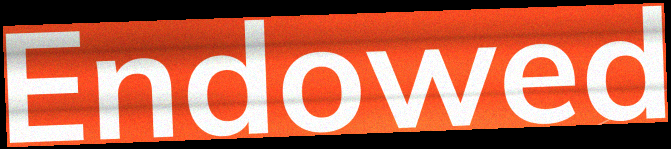
Endowed